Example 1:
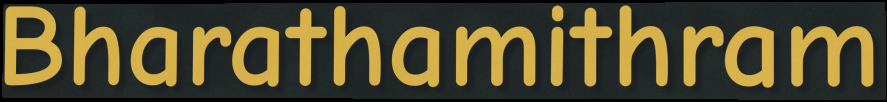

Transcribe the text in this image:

Bharathamithram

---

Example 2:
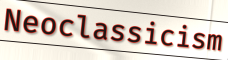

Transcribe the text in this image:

Neoclassicism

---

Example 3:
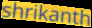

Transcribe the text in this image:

shrikanth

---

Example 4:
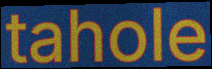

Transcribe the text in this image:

tahole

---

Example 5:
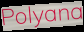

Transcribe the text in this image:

Polyana